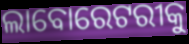
ଲାବୋରେଟରୀକୁ